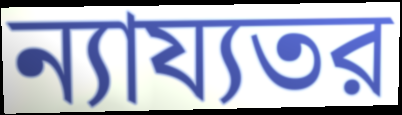
ন্যায্যতর